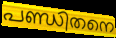
പണ്ഡിതനെ